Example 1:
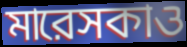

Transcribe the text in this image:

মারেসকাও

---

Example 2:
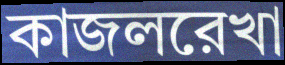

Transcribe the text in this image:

কাজলরেখা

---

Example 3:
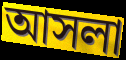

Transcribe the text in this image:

আসলা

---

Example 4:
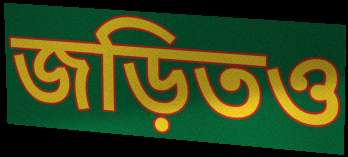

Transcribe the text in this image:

জড়িতও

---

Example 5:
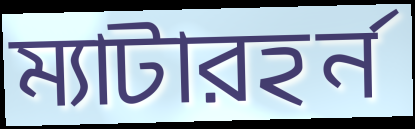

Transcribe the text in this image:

ম্যাটারহর্ন